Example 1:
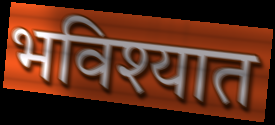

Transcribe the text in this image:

भविश्यात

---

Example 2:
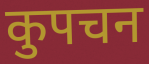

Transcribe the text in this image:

कुपचन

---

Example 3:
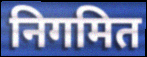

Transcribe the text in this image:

निगमित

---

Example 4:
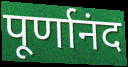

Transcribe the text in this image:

पूर्णानंद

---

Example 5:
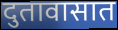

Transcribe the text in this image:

दुतावासात